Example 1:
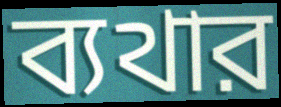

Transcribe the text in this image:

ব্যথার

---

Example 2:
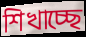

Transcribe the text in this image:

শিখাচ্ছে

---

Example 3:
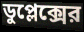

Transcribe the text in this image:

ডুপ্লেক্সের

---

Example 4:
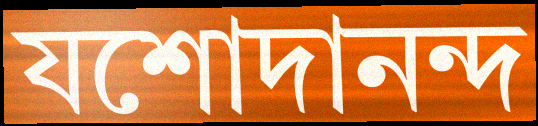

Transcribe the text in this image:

যশোদানন্দ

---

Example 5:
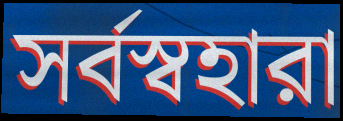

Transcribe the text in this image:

সর্বস্বহারা